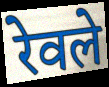
रेवले